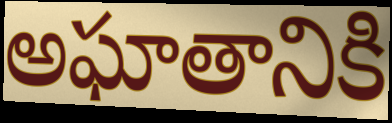
అఘాతానికి